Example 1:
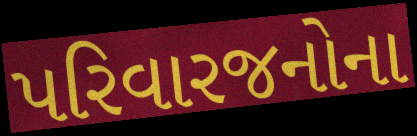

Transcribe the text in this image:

પરિવારજનોના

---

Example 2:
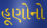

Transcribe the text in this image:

હૂણોનો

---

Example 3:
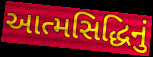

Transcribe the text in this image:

આત્મસિદ્ધિનું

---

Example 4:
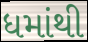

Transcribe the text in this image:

ધમાંથી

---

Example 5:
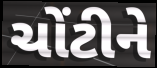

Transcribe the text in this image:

ચોંટીને